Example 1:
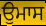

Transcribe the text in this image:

ਉਮਾਸ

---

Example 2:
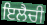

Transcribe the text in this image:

ਇਲੈਚੀ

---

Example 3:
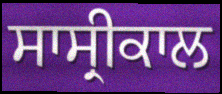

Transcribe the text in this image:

ਸਾਸ੍ਰੀਕਾਲ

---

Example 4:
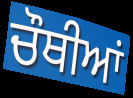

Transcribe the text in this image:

ਚੌਥੀਆਂ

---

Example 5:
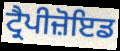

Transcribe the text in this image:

ਟ੍ਰੈਪੀਜ਼ੋਇਡ